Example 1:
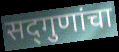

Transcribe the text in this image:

सद्‍गुणांचा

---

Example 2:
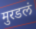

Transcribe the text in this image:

मुरडलं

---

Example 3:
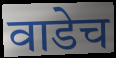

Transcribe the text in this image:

वाडेच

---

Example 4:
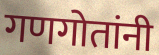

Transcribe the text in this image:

गणगोतांनी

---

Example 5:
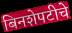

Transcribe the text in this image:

बिनशेपटीचे